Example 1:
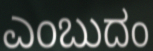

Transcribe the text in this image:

ಎಂಬುದಂ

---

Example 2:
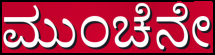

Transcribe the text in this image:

ಮುಂಚೆನೇ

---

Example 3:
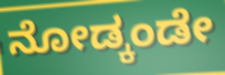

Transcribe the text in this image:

ನೋಡ್ಕಂಡೇ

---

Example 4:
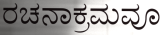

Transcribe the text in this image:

ರಚನಾಕ್ರಮವೂ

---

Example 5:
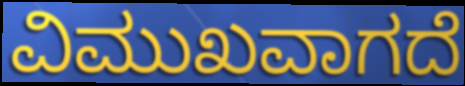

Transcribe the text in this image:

ವಿಮುಖವಾಗದೆ